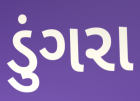
ડુંગરા